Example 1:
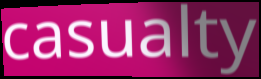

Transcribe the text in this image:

casualty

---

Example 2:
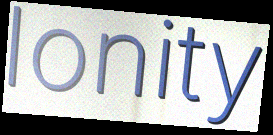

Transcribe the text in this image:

Ionity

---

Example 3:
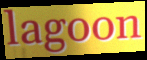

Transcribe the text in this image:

lagoon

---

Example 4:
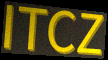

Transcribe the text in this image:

ITCZ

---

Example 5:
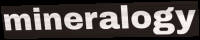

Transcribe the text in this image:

mineralogy